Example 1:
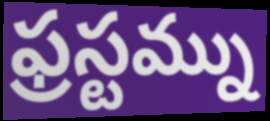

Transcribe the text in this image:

ఫ్రస్టమ్ను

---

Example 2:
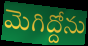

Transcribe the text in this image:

మెగిద్దోను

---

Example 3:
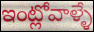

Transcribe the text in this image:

ఇంట్లోవాళ్ళే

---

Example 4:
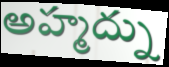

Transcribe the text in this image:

అహ్మద్ను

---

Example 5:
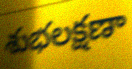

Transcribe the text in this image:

శుభలక్షణా